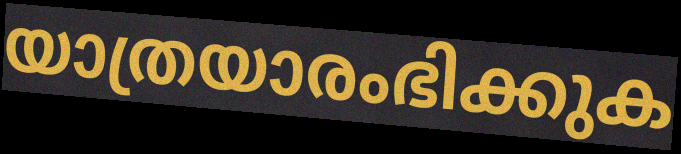
യാത്രയാരംഭിക്കുക